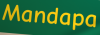
Mandapa